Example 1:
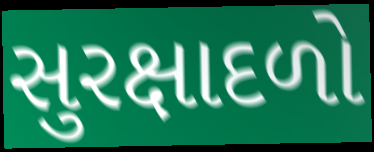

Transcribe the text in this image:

સુરક્ષાદળો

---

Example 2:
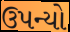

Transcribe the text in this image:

ઉપન્યો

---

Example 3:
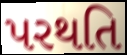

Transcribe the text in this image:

પરથતિ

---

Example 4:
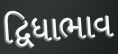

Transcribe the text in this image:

દ્વિધાભાવ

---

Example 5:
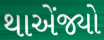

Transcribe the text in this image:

થાએંજ્યો